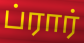
ப்ரார்